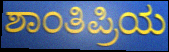
ಶಾಂತಿಪ್ರಿಯ